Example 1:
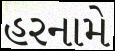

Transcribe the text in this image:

હરનામે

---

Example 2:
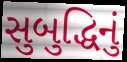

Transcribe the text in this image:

સુબુદ્ધિનું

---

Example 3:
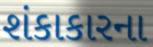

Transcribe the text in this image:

શંકાકારના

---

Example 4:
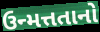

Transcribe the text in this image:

ઉન્મત્તતાનો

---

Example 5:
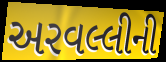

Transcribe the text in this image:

અરવલ્લીની